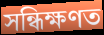
সন্ধিক্ষণত